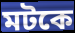
মটকে